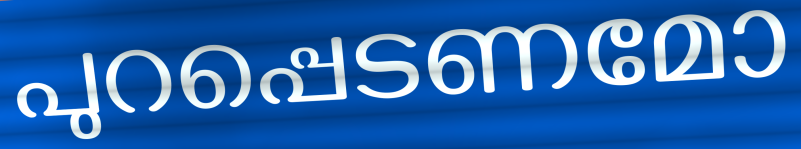
പുറപ്പെടണമോ